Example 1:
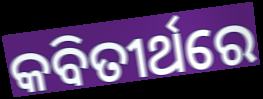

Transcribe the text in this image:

କବିତୀର୍ଥରେ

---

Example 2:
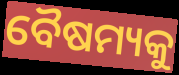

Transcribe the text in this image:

ବୈଷମ୍ୟକୁ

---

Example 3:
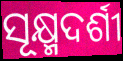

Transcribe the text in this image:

ସୂକ୍ଷ୍ମଦର୍ଶୀ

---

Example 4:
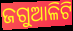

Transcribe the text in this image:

ଜଗୁଆଳିଟି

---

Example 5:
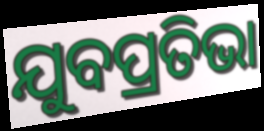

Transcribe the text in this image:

ଯୁବପ୍ରତିଭା